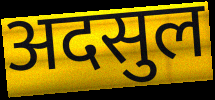
अदसुल